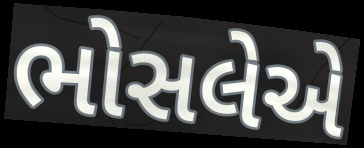
ભોસલેએ